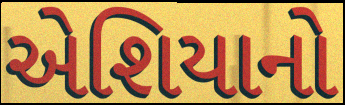
એશિયાનો